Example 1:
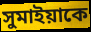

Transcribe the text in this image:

সুমাইয়াকে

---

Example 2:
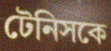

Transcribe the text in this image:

টেনিসকে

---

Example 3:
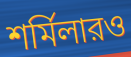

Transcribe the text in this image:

শর্মিলারও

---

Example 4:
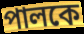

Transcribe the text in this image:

পালকে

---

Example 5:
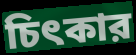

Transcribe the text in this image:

চিৎকার